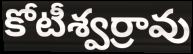
కోటీశ్వర్రావు